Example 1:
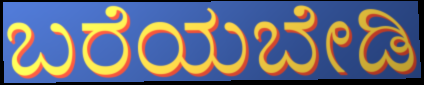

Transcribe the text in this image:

ಬರೆಯಬೇಡಿ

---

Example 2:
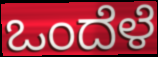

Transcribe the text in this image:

ಒಂದೆಳೆ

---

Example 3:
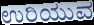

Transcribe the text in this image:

ಉರಿಯುವ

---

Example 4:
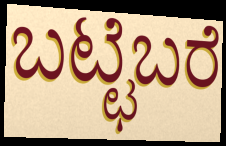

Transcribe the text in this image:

ಬಟ್ಟೆಬರೆ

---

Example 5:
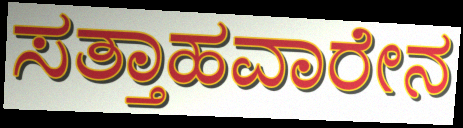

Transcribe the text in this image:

ಸತ್ತಾಹವಾರೇನ